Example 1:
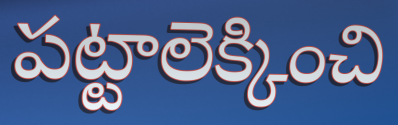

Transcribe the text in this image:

పట్టాలెక్కించి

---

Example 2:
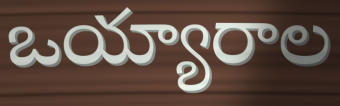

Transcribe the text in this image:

ఒయ్యారాల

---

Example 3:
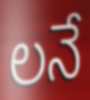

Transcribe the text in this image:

లనే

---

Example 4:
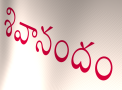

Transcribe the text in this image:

శివానందం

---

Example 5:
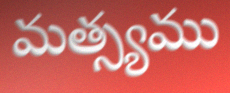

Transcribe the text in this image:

మత్స్యము